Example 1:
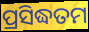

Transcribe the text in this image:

ପ୍ରସିଦ୍ଧତମ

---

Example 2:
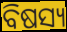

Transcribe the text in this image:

ବିଷସ୍ୟ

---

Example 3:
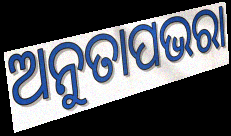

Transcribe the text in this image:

ଅନୁତାପଭରା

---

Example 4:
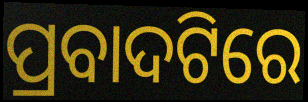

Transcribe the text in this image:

ପ୍ରବାଦଟିରେ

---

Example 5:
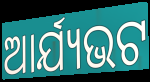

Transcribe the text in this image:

ଆର୍ଯ୍ୟଭଟ